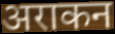
अराकन